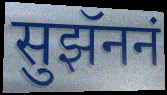
सुझॅननं